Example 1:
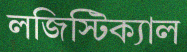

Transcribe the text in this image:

লজিস্টিক্যাল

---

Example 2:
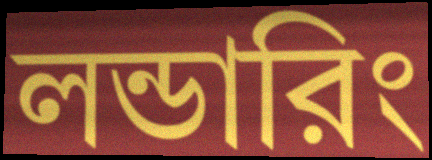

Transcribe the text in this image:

লন্ডারিং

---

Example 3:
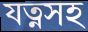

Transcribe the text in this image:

যত্নসহ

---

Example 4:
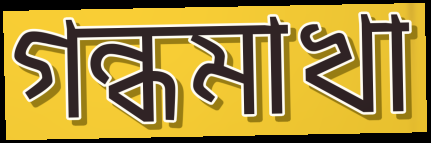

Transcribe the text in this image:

গন্ধমাখা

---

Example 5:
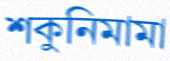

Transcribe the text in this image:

শকুনিমামা